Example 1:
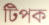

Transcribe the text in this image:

টিপক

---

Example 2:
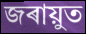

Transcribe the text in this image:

জৰায়ুত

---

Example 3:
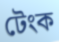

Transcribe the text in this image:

টেংক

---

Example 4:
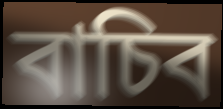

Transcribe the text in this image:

বাচিব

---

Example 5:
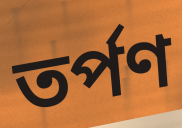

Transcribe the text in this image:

তৰ্পণ